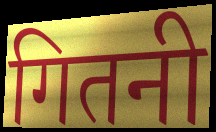
गितनी